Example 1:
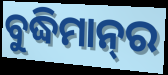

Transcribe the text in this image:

ବୁଦ୍ଧିମାନ୍‍ର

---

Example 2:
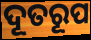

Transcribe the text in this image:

ଦୂତରୂପ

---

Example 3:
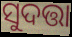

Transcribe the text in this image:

ସୁଦତ୍ତା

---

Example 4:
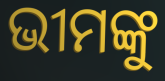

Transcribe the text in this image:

ଭୀମଙ୍କୁ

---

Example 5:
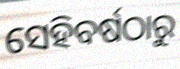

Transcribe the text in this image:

ସେହିବର୍ଷଠାରୁ